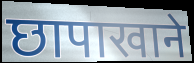
छापाखाने